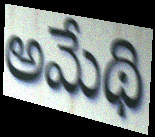
అమేథి